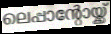
ലെപ്പാന്റോയ്ക്ക്